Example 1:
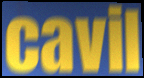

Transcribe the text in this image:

cavil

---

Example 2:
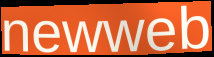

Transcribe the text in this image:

newweb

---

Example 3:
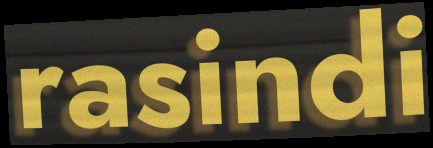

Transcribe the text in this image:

rasindi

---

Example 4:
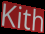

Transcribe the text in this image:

Kith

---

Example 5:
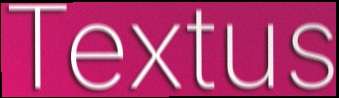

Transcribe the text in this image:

Textus